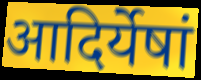
आदिर्येषां